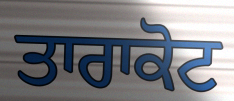
ਤਾਰਾਕੋਟ